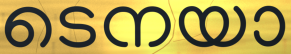
ടെനയാ